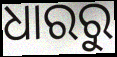
ଧାରରୁ